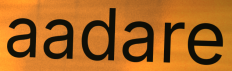
aadare